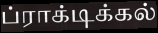
ப்ராக்டிக்கல்